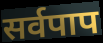
सर्वपाप